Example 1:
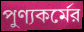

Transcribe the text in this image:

পুণ্যকর্মের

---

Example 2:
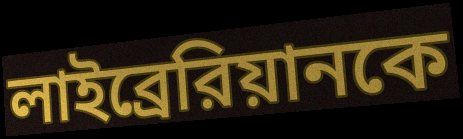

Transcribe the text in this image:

লাইব্রেরিয়ানকে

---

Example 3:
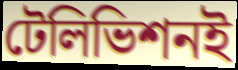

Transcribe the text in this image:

টেলিভিশনই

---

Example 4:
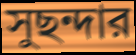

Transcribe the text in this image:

সুছন্দার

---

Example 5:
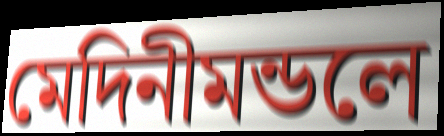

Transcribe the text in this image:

মেদিনীমন্ডলে